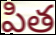
పిత